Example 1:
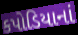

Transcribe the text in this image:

કપોડિયાનાં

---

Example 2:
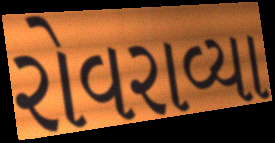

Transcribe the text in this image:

રોવરાવ્યા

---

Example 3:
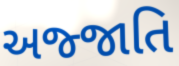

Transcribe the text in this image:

અજ્જાતિ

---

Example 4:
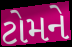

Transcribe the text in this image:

ટોમને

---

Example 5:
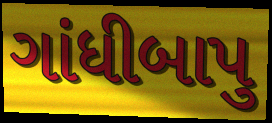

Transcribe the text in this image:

ગાંધીબાપુ